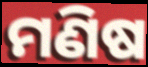
ମଣିଷ